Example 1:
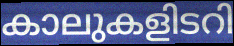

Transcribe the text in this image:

കാലുകളിടറി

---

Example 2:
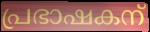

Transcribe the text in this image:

പ്രഭാഷകന്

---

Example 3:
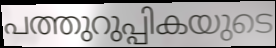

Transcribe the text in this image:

പത്തുറുപ്പികയുടെ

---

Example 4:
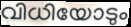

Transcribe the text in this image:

വിധിയോടും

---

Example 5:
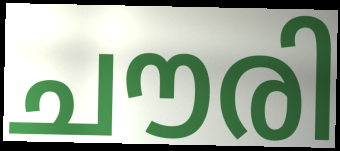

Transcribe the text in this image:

ചൗരി